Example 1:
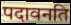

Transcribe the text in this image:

पदावनति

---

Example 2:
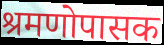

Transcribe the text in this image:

श्रमणोपासक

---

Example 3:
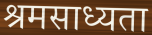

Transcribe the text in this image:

श्रमसाध्यता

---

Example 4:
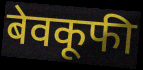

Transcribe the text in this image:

बेवकूफी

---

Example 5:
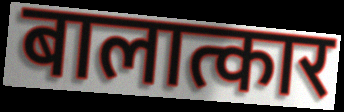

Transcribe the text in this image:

बालात्कार